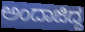
ಅಂದಾಜಿದ್ದ